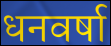
धनवर्षा